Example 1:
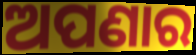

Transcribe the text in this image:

ଅପଣାର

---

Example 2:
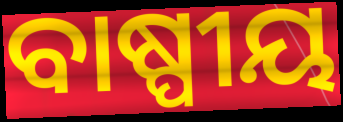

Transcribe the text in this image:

ବାଷ୍ପୀୟ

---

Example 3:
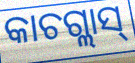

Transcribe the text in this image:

କାଚଗ୍ଲାସ୍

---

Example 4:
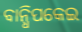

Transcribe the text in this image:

ବାନ୍ଧିପକେଇ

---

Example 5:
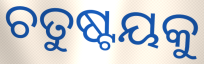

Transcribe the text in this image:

ଚତୁଷ୍ଟୟକୁ